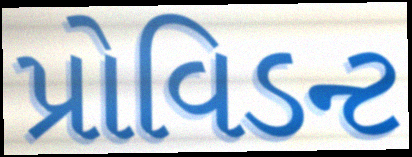
પ્રોવિડન્ટ